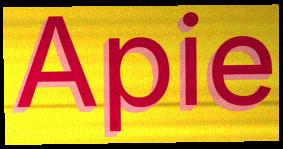
Apie